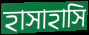
হাসাহাসি